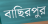
বাছিরপুর